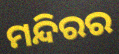
ମନ୍ଦିରର